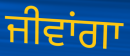
ਜੀਵਾਂਗਾ